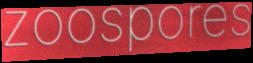
zoospores